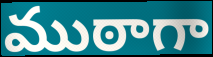
ముఠాగా